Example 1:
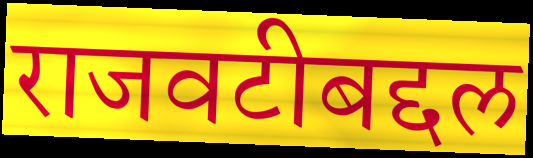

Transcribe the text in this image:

राजवटीबद्दल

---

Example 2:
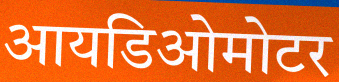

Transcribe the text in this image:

आयडिओमोटर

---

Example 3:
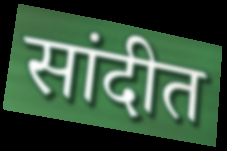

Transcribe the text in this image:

सांदीत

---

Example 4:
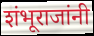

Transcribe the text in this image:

शंभूराजांनी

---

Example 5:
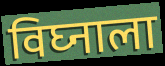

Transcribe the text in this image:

विघ्नाला